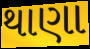
થાણા